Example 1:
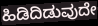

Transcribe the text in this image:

ಹಿಡಿದಿಡುವುದೇ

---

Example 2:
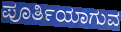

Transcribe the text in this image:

ಪೂರ್ತಿಯಾಗುವ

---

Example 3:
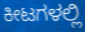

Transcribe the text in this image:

ಕೀಟಗಳಲ್ಲಿ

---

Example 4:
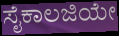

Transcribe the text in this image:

ಸೈಕಾಲಜಿಯೇ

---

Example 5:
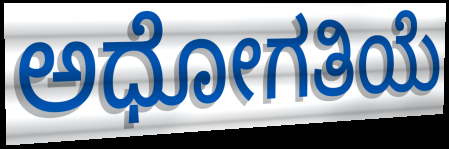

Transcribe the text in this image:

ಅಧೋಗತಿಯೆ